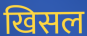
खिसल